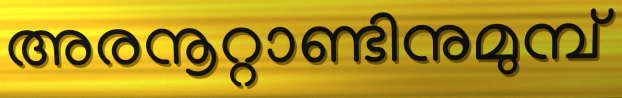
അരനൂറ്റാണ്ടിനുമുമ്പ്